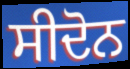
ਸੀਦੋਨ